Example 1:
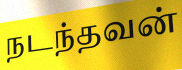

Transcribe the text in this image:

நடந்தவன்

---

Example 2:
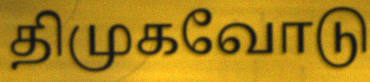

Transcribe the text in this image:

திமுகவோடு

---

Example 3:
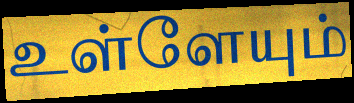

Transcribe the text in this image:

உள்ளேயும்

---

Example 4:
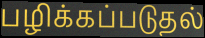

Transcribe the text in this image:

பழிக்கப்படுதல்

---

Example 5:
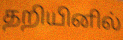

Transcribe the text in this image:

தறியினில்